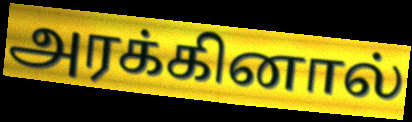
அரக்கினால்